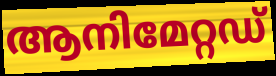
ആനിമേറ്റഡ്